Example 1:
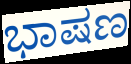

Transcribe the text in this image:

ಭಾಷಣ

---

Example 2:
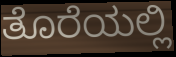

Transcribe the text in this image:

ತೊರೆಯಲ್ಲಿ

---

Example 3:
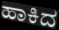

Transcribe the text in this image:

ಹಾಕಿದ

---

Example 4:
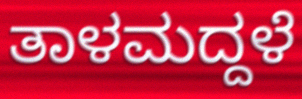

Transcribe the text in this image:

ತಾಳಮದ್ದಳೆ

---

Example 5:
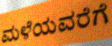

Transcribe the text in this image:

ಮಳೆಯವರೆಗೆ